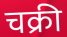
चक्री